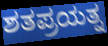
ಶತಪ್ರಯತ್ನ